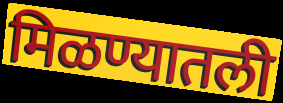
मिळण्यातली